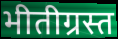
भीतीग्रस्त